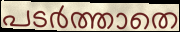
പടർത്താതെ